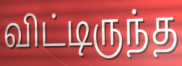
விட்டிருந்த